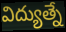
విద్యుత్నే